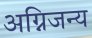
अग्निजन्य